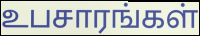
உபசாரங்கள்